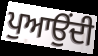
ਪੁਆਉਂਦੀ